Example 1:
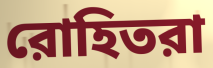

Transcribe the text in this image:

রোহিতরা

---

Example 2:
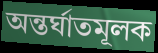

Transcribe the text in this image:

অন্তর্ঘাতমূলক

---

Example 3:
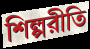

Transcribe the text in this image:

শিল্পরীতি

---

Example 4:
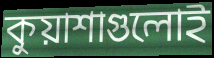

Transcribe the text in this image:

কুয়াশাগুলোই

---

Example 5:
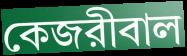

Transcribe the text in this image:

কেজরীবাল